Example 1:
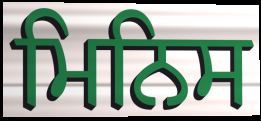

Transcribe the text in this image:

ਮਿਨਿਸ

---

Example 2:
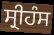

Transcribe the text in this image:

ਸ੍ਰੀਹੰਸ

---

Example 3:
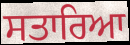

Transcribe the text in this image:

ਸਤਾਰਿਆ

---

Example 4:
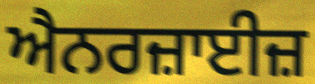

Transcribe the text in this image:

ਐਨਰਜ਼ਾਈਜ਼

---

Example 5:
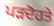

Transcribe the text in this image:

ਪੜਦੋਹਤੇ